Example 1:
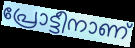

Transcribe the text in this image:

പ്രോട്ടീനാണ്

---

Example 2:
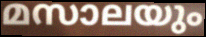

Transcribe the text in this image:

മസാലയും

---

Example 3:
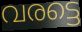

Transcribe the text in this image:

വരട്ടെ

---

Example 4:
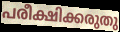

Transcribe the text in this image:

പരീക്ഷിക്കരുതു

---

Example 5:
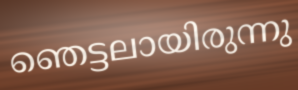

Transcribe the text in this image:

ഞെട്ടലായിരുന്നു